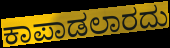
ಕಾಪಾಡಲಾರದು